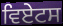
ਵਿਏਟਸ